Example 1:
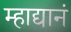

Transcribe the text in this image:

म्हाद्यानं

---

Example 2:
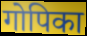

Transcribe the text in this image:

गोपिका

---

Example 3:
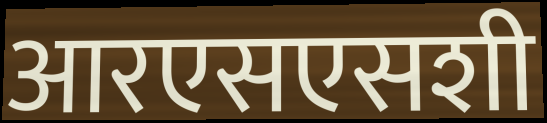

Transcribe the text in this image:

आरएसएसशी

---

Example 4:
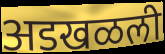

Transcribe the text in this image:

अडखळली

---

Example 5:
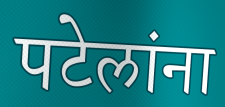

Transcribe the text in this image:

पटेलांना